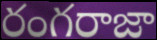
రంగరాజా